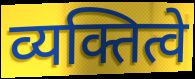
व्यक्तित्वे